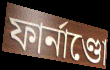
ফাৰ্নাণ্ডো